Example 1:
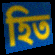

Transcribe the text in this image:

হিত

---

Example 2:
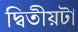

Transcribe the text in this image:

দ্বিতীয়টা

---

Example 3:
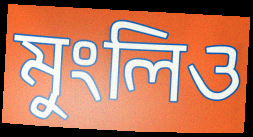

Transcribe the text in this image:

মুংলিও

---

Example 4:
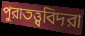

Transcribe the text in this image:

পুরাতত্ত্ববিদরা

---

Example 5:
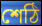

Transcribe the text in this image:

শেঠি